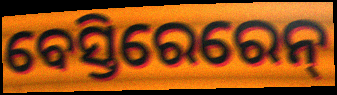
ବେସ୍ତିରେରେନ୍